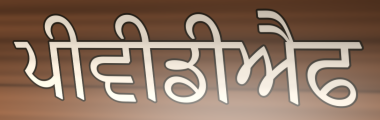
ਪੀਵੀਡੀਐਫ